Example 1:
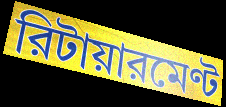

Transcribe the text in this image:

রিটায়ারমেণ্ট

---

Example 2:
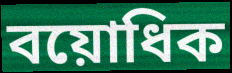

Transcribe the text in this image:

বয়োধিক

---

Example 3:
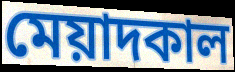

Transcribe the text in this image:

মেয়াদকাল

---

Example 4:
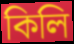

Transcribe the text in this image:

কিলি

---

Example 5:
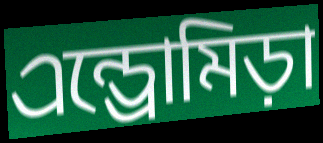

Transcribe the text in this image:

এন্ড্রোমিড়া